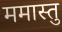
ममास्तु